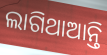
ଲାଗିଥାଆନ୍ତି